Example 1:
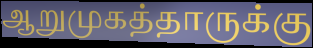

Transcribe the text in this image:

ஆறுமுகத்தாருக்கு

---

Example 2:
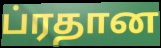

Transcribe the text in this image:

ப்ரதான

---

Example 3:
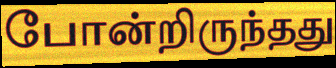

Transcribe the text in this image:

போன்றிருந்தது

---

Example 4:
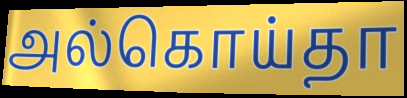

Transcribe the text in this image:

அல்கொய்தா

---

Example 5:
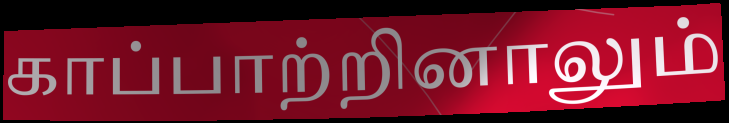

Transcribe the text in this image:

காப்பாற்றினாலும்